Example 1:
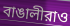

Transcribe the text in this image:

বাঙালীরাও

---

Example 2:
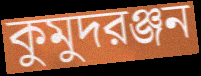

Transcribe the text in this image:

কুমুদরঞ্জন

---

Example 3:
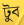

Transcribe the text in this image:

টুব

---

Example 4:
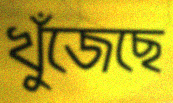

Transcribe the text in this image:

খুঁজেছে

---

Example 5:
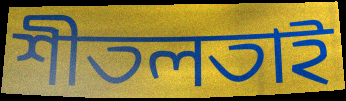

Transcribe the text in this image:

শীতলতাই